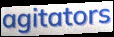
agitators